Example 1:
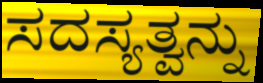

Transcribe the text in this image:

ಸದಸ್ಯತ್ವನ್ನು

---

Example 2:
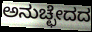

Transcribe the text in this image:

ಅನುಚ್ಛೇದದ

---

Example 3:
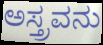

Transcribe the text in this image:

ಅಸ್ತ್ರವನು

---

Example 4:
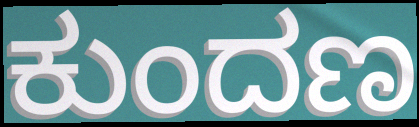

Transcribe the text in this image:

ಕುಂದಣ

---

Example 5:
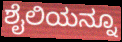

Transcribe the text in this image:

ಶೈಲಿಯನ್ನೂ